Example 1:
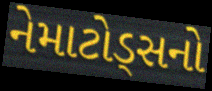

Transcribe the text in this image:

નેમાટોડ્સનો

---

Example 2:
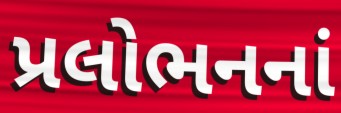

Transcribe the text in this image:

પ્રલોભનનાં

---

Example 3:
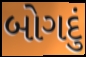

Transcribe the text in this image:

બોગદું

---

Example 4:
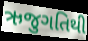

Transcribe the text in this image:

ઋજુગતિથી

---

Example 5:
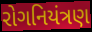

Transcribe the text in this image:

રોગનિયંત્રણ